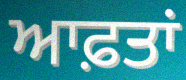
ਆਫ਼ਤਾਂ